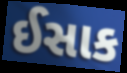
ઈસાક